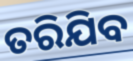
ତରିଯିବ